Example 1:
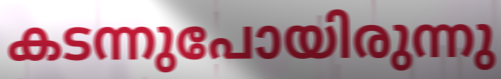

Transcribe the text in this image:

കടന്നുപോയിരുന്നു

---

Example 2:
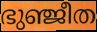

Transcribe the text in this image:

ഭുഞ്ജീത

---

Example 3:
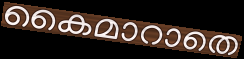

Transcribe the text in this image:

കൈമാറാതെ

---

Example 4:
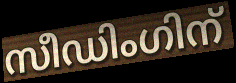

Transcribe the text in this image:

സീഡിംഗിന്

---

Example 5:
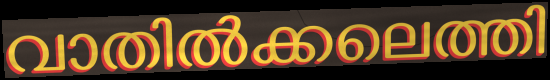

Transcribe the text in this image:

വാതിൽക്കലെത്തി